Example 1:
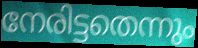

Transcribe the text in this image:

നേരിട്ടതെന്നും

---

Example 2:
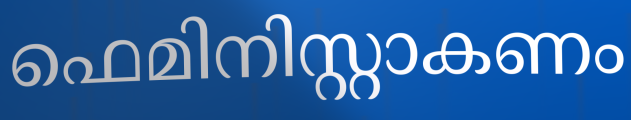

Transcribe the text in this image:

ഫെമിനിസ്റ്റാകണം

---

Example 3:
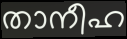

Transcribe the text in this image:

താനീഹ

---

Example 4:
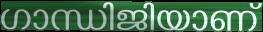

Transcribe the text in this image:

ഗാന്ധിജിയാണ്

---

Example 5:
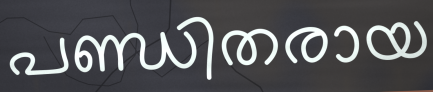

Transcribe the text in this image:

പണ്ഡിതരായ